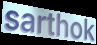
sarthok